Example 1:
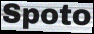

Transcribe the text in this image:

Spoto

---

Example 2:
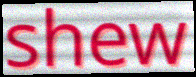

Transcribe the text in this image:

shew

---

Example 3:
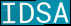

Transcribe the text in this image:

IDSA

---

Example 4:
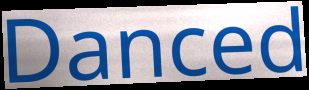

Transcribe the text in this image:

Danced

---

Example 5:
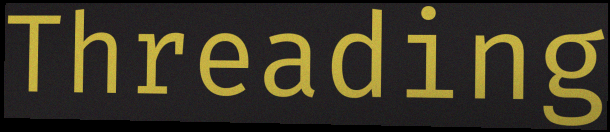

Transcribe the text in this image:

Threading